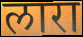
लारा